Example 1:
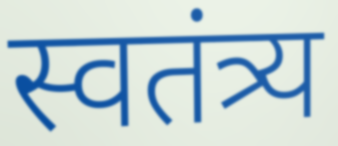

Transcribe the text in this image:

स्वतंत्र्य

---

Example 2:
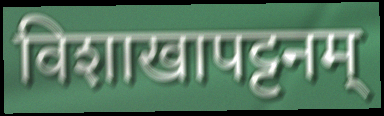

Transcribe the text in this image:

विशाखापट्टनम्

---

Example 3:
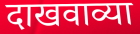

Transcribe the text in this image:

दाखवाव्या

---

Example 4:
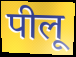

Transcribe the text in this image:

पीलू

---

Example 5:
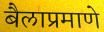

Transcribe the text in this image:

बैलाप्रमाणे